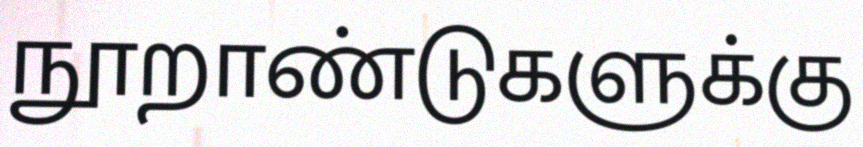
நூறாண்டுகளுக்கு